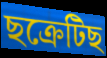
ছক্ৰেটিছ